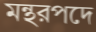
মন্থরপদে